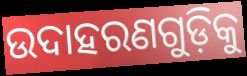
ଉଦାହରଣଗୁଡ଼ିକୁ